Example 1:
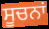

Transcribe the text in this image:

ਸੂਚਨਾਂ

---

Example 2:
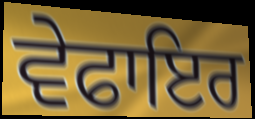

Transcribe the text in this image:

ਵੇਫਾਇਰ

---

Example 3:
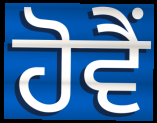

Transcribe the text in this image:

ਹੋਵੈਂ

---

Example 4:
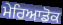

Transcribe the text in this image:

ਮੇਰਿਆਡੋਕ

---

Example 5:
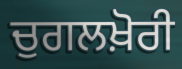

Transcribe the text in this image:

ਚੁਗਲਖ਼ੋਰੀ